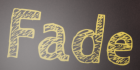
Fade